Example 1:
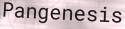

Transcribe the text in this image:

Pangenesis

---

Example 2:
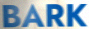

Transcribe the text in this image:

BARK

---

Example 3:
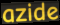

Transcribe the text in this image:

azide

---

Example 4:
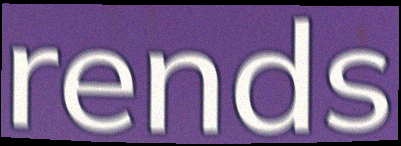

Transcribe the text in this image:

rends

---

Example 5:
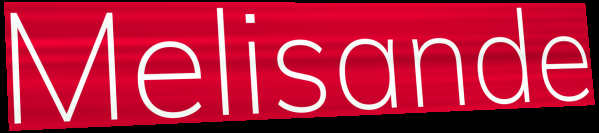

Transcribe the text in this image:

Melisande